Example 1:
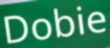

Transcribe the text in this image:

Dobie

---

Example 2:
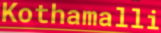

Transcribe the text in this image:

Kothamalli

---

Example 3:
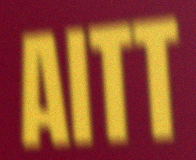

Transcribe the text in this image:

AITT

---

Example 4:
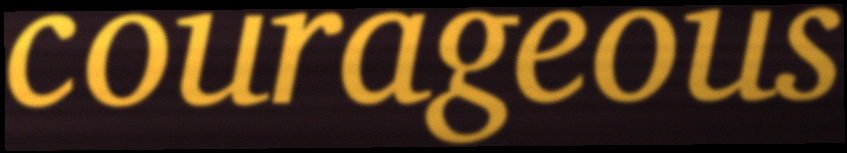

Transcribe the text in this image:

courageous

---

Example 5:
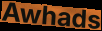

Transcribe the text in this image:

Awhads